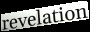
revelation